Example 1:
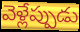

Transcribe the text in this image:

వెళ్లేప్పుడు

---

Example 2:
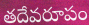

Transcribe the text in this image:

తదేవరూపం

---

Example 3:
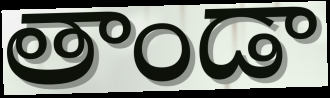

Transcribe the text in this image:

తాండా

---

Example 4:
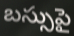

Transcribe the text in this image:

బస్సుపై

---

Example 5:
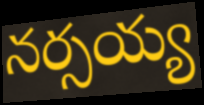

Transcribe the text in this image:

నర్సయ్య